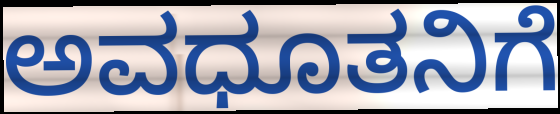
ಅವಧೂತನಿಗೆ